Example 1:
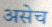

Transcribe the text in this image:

असेच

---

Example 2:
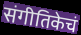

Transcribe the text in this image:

संगीतिकेचं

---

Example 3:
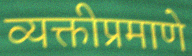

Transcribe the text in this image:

व्यक्तीप्रमाणे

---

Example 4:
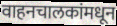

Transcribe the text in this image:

वाहनचालकांमधून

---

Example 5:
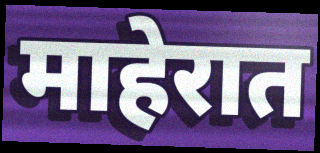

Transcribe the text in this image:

माहेरात